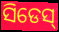
ସିଡେସ୍